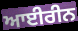
ਆਈਰੀਨ